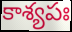
కాశ్యపః